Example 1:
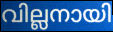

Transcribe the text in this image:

വില്ലനായി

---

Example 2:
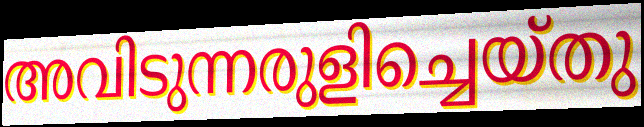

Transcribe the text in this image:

അവിടുന്നരുളിച്ചെയ്തു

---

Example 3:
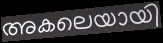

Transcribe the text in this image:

അകലെയായി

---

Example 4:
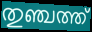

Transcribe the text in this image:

തുഞ്ചത്ത്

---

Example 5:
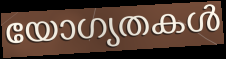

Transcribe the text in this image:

യോഗ്യതകൾ